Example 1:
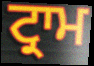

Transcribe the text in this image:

ਟ੍ਰਾਮ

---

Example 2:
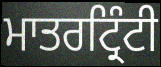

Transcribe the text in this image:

ਮਾਤਰਟ੍ਰਿੰਟੀ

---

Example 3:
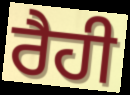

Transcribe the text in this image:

ਰੈਹੀ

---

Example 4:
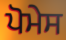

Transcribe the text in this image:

ਪੋਮੇਸ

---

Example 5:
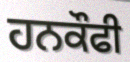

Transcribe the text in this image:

ਹਨਕੌਫੀ